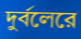
দুর্বলেরে